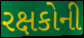
રક્ષકોની